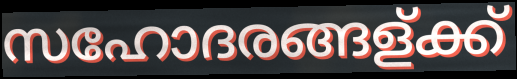
സഹോദരങ്ങള്ക്ക്